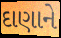
દાણાને